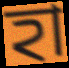
হা